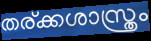
തര്ക്കശാസ്ത്രം